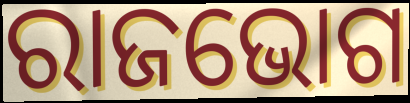
ରାଜଭୋଗ